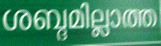
ശബ്ദമില്ലാത്ത